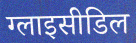
ग्लाइसीडिल